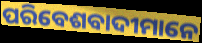
ପରିବେଶବାଦୀମାନେ